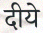
दीये